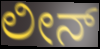
ಲೀನ್